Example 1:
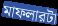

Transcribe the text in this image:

মাফলারটা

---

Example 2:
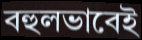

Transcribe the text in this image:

বহুলভাবেই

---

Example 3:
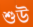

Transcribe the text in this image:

শুউ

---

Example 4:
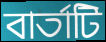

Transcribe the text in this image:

বার্তাটি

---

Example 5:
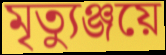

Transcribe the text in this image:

মৃত্যুঞ্জয়ে